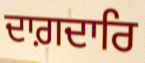
ਦਾਗ਼ਦਾਰਿ